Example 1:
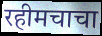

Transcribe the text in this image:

रहीमचाचा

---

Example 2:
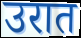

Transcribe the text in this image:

उरात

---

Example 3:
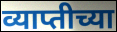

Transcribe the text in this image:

व्याप्तीच्या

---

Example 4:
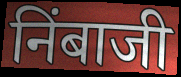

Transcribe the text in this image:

निंबाजी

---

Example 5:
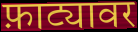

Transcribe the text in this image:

फ़ाट्यावर